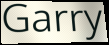
Garry